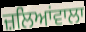
ਜ਼ਲਿਆਂਵਾਲਾ